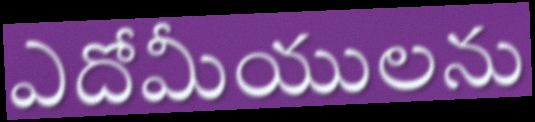
ఎదోమీయులను